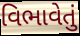
વિભાવેતું